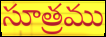
సూత్రము